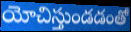
యోచిస్తుండడంతో